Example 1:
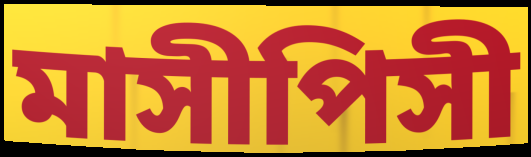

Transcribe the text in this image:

মাসীপিসী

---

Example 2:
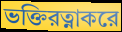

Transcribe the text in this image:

ভক্তিরত্নাকরে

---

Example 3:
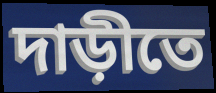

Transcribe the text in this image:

দাড়ীতে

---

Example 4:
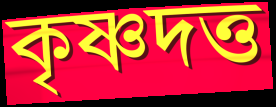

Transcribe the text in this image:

কৃষ্ণদত্ত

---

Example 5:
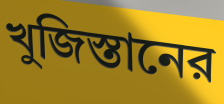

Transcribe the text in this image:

খুজিস্তানের